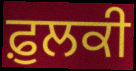
ਫ਼ੁਲਕੀ